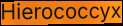
Hierococcyx